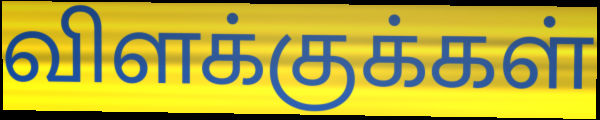
விளக்குக்கள்